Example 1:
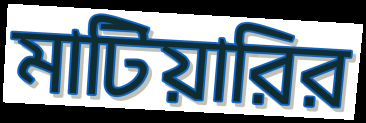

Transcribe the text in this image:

মাটিয়ারির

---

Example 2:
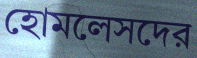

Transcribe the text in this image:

হোমলেসদের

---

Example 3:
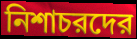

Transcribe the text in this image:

নিশাচরদের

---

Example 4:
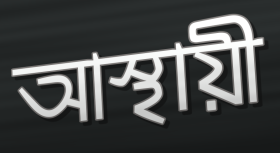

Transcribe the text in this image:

আস্থায়ী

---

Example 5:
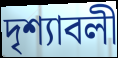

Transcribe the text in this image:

দৃশ্যাবলী